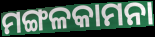
ମଙ୍ଗଳକାମନା